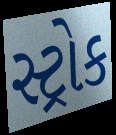
સ્ટ્રોક